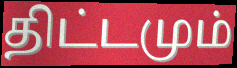
திட்டமும்